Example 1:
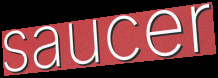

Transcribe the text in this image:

saucer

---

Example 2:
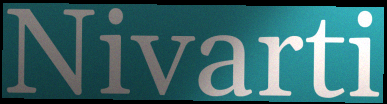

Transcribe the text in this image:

Nivarti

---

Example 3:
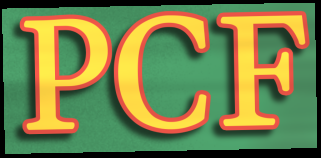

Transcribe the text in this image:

PCF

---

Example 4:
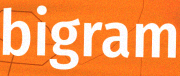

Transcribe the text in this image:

bigram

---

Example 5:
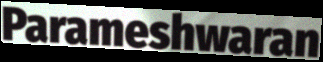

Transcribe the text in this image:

Parameshwaran